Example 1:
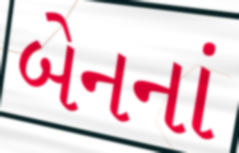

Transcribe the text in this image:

બેનનાં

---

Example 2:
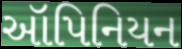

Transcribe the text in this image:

ઑપિનિયન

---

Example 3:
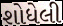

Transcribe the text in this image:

શોધેલી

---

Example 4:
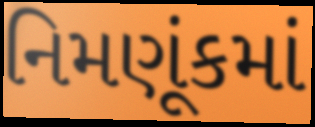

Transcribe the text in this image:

નિમણૂંકમાં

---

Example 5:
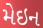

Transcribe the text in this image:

મેઇન